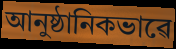
আনুষ্ঠানিকভাৱে